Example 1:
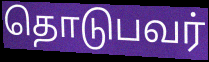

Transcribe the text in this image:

தொடுபவர்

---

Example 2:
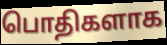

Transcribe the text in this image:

பொதிகளாக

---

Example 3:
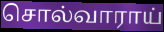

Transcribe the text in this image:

சொல்வாராய்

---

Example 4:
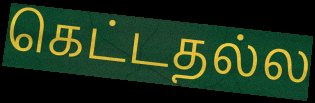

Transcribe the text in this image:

கெட்டதல்ல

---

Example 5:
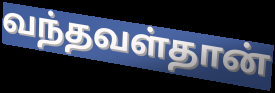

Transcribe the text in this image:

வந்தவள்தான்